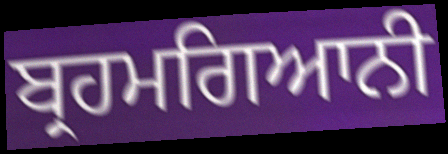
ਬ੍ਰਹਮਗਿਆਨੀ